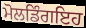
ਮੋਲਡਿੰਗਇਹ